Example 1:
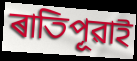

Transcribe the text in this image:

ৰাতিপূৱাই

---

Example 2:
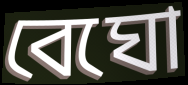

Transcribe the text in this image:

বেঘো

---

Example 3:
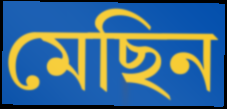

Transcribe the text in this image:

মেছিন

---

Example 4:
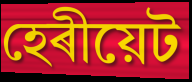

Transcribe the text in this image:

হেৰীয়েট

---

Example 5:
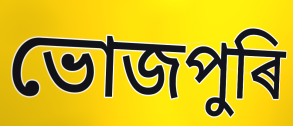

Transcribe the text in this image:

ভোজপুৰি